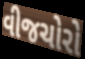
વીજચોરો